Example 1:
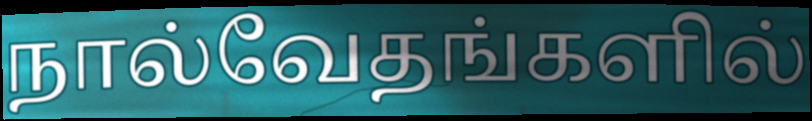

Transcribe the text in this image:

நால்வேதங்களில்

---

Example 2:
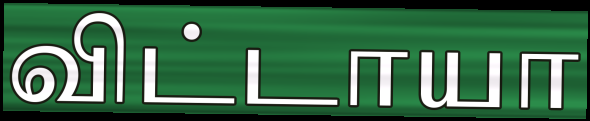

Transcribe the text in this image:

விட்டாயா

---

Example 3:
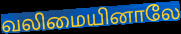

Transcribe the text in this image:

வலிமையினாலே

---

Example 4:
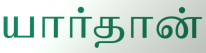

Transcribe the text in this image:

யார்தான்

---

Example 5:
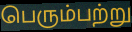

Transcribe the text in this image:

பெரும்பற்று